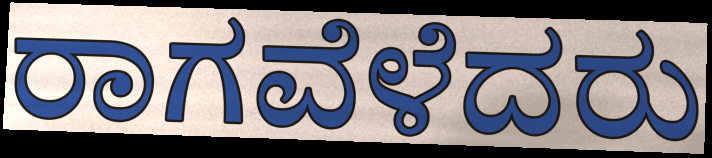
ರಾಗವೆಳೆದರು